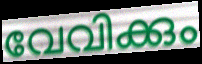
വേവിക്കും